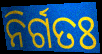
ନିର୍ଗତଃ